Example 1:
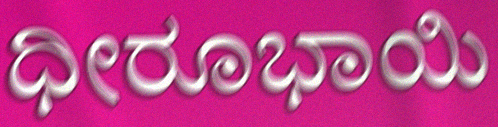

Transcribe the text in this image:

ಧೀರೂಭಾಯಿ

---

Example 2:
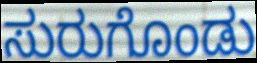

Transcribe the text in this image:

ಸುರುಗೊಂಡು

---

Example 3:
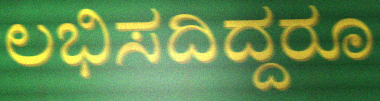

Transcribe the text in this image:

ಲಭಿಸದಿದ್ದರೂ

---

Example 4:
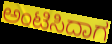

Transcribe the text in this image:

ಅಂಟಿಸಿದಾಗ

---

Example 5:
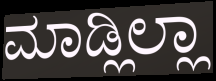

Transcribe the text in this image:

ಮಾಡ್ಲಿಲ್ಲಾ